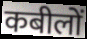
कबीलों